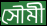
সৌমী